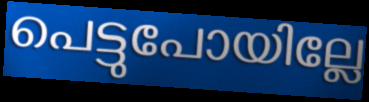
പെട്ടുപോയില്ലേ